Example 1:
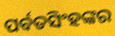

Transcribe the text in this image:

ପର୍ବତସିଂହଙ୍କର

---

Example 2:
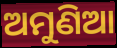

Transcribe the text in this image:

ଅମୁଣିଆ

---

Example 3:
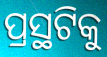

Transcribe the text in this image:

ପ୍ରସ୍ଥଟିକୁ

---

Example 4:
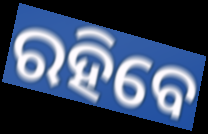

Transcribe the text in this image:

ରହିବେ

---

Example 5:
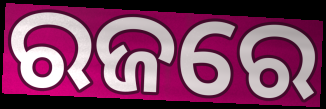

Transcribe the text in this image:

ରଜରେ